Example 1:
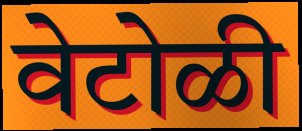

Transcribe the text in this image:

वेटोळी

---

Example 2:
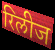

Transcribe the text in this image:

रिलीज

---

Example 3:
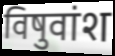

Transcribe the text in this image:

विषुवांश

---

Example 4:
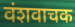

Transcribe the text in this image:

वंशवाचक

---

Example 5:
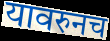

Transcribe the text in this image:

यावरुनच